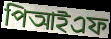
পিআইএফ